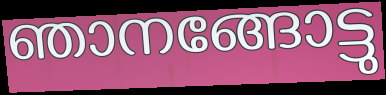
ഞാനങ്ങോട്ടു